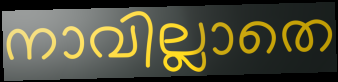
നാവില്ലാതെ